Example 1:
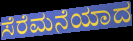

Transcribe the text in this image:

ಸೆರೆಮನೆಯಾದ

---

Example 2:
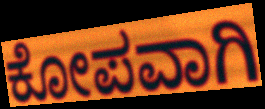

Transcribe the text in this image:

ಕೋಪವಾಗಿ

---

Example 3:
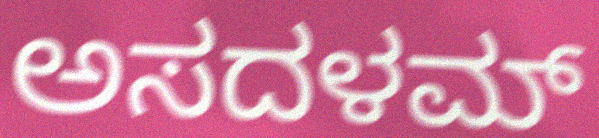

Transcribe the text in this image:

ಅಸದಳಮ್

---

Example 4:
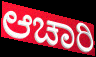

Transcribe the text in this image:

ಆಚಾರಿ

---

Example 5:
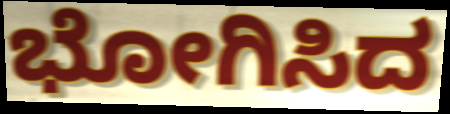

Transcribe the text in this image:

ಭೋಗಿಸಿದ